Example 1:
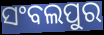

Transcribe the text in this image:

ସଂବଲପୁର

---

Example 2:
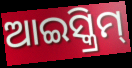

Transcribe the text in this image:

ଆଇସ୍କ୍ରିମ୍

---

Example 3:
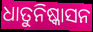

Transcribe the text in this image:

ଧାତୁନିଷ୍କାସନ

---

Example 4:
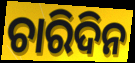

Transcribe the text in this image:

ଚାରିଦିନ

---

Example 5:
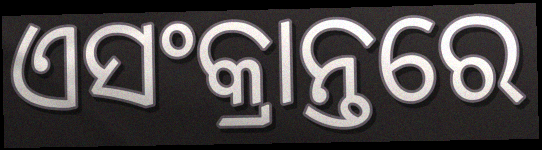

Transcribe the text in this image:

ଏସଂକ୍ରାନ୍ତରେ